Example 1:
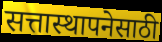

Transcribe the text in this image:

सत्तास्थापनेसाठी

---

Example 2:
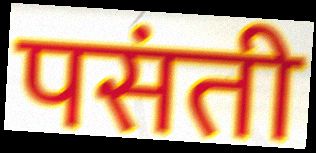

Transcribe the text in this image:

पसंती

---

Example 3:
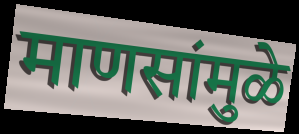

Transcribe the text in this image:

माणसांमुळे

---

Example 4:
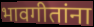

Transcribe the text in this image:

भावगीतांना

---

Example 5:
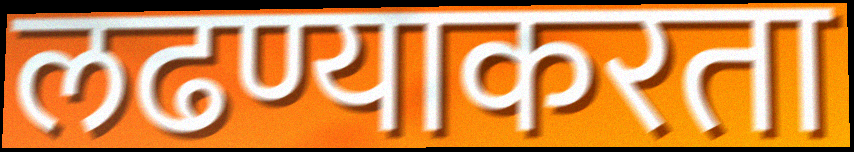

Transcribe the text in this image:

लढण्याकरता